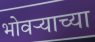
भोवऱ्याच्या